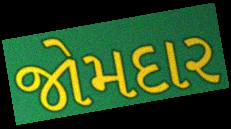
જોમદાર